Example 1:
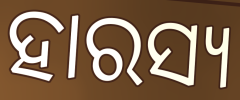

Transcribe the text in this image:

ହାରସ୍ୟ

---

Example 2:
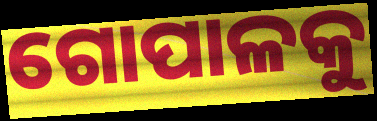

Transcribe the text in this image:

ଗୋପାଳକୁ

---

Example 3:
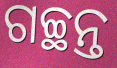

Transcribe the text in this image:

ଗଚ୍ଛନ୍ତ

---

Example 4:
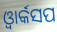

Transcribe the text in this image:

ଓ୍ୱାର୍କସପ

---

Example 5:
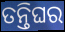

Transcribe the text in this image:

ତନ୍ତିଘର